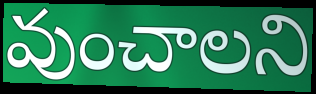
వుంచాలని